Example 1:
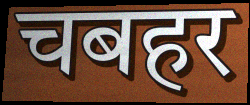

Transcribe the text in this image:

चबहर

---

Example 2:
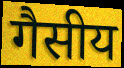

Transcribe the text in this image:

गैसीय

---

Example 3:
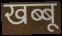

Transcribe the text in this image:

खब्बू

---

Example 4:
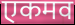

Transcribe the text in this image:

एकमव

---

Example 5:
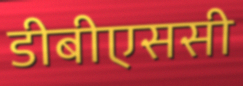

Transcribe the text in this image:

डीबीएससी